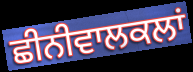
ਛੀਨੀਵਾਲਕਲਾਂ